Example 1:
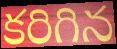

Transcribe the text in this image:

కరిగిన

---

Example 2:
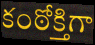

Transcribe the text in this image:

కంఠోక్తిగా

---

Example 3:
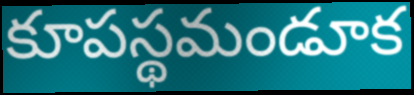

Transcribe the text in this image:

కూపస్థమండూక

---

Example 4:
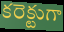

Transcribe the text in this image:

కరెక్టుగా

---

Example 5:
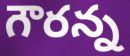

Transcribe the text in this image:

గౌరన్న